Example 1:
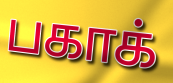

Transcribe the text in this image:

பகாக்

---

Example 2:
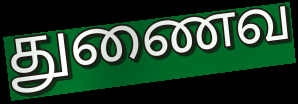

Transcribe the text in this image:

துணைவ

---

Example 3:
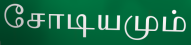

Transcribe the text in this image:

சோடியமும்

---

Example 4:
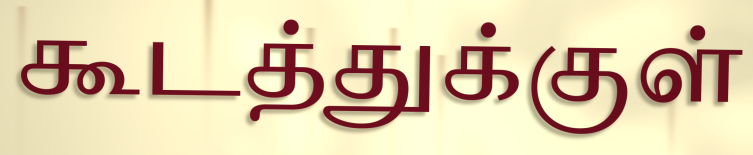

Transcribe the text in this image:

கூடத்துக்குள்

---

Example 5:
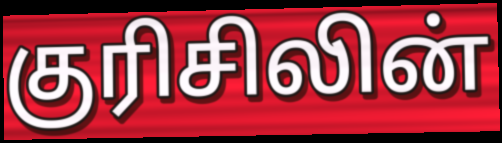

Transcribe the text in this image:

குரிசிலின்